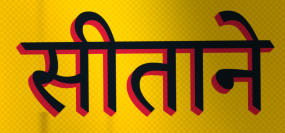
सीताने